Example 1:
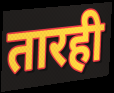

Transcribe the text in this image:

तारही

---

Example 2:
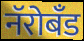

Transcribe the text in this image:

नॅरोबँड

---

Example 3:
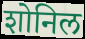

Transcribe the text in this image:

शोनिल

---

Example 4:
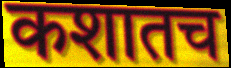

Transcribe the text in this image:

कशातच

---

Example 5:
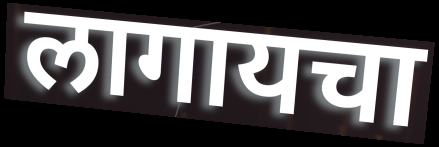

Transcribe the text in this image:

लागायचा